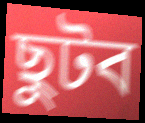
ছুটব